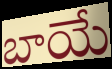
బాయే